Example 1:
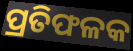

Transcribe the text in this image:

ପ୍ରତିଫଳକ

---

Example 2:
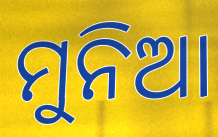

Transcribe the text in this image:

ମୁନିଆ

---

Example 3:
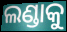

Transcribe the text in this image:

ଲଣ୍ଡାକୁ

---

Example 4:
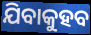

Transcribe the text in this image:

ଯିବାକୁହବ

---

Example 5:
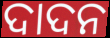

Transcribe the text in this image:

ଦାଦନ